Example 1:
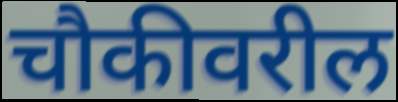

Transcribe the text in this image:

चौकीवरील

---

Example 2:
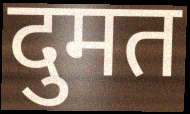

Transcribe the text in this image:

दुमत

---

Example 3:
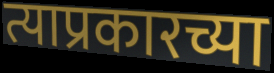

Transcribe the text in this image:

त्याप्रकारच्या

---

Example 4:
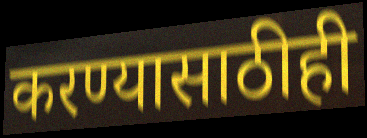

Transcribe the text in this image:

करण्यासाठीही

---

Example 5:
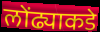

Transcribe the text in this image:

लोंढ्याकडे